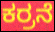
ಕರ್ರನೆ